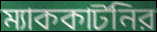
ম্যাককার্টনির